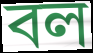
বল